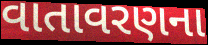
વાતાવરણના